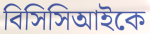
বিসিসিআইকে